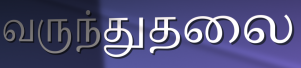
வருந்துதலை